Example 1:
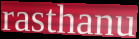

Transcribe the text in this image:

rasthanu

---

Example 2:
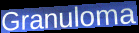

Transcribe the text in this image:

Granuloma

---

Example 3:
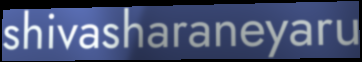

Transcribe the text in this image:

shivasharaneyaru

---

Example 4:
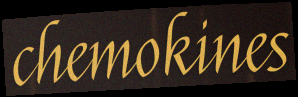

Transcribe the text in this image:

chemokines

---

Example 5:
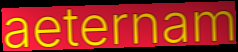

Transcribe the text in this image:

aeternam